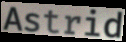
Astrid